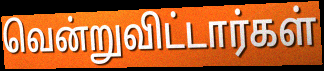
வென்றுவிட்டார்கள்